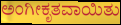
ಅಂಗೀಕೃತವಾಯಿತು